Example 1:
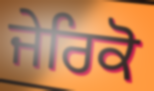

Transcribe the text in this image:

ਜੇਰਿਕੋ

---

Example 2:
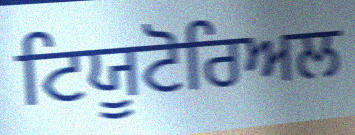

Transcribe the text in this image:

ਟਿਯੂਟੋਰਿਅਲ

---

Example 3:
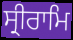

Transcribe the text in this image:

ਸ੍ਰੀਰਾਮਿ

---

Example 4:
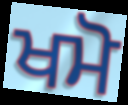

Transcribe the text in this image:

ਖਮੋ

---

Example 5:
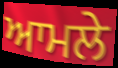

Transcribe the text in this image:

ਆਮਲੇ